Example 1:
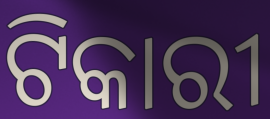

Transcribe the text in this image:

ଟିକାରୀ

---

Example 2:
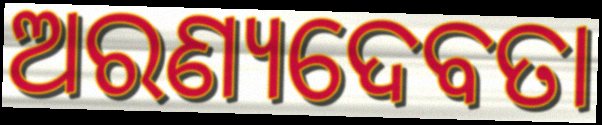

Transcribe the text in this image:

ଅରଣ୍ୟଦେବତା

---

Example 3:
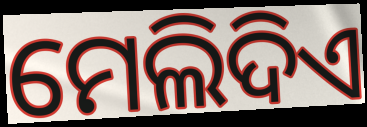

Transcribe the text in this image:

ମେଲିଦିଏ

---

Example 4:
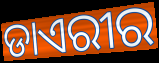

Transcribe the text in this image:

ଡାଏରୀର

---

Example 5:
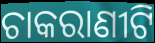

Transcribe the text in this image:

ଚାକରାଣୀଟି